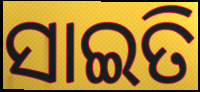
ସାଇତି